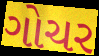
ગોચર